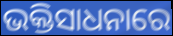
ଭକ୍ତିସାଧନାରେ